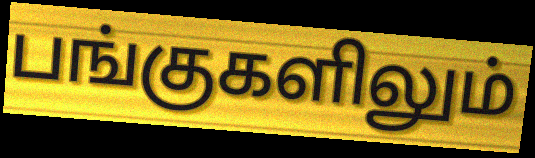
பங்குகளிலும்